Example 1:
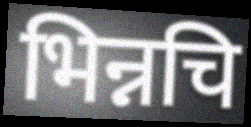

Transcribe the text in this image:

भिन्नचि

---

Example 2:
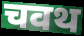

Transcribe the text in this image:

चवथ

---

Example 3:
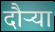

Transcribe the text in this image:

दौऱ्या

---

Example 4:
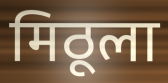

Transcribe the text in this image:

मिठूला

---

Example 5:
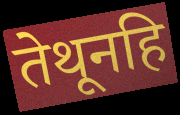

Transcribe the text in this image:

तेथूनहि